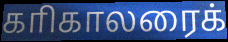
கரிகாலரைக்